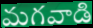
మగవాడి